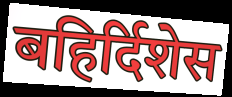
बहिर्दिशेस